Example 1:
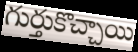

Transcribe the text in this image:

గుర్తుకొచ్చాయి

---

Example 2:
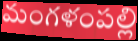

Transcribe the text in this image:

మంగళంపల్లి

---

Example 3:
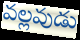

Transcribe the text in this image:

వల్లవుడు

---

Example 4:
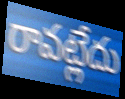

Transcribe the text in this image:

రావట్లేదు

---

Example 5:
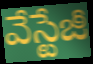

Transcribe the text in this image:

వేస్టేజీ